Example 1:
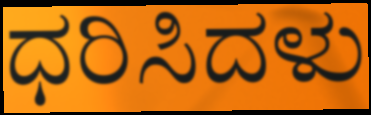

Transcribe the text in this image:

ಧರಿಸಿದಳು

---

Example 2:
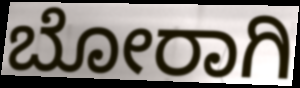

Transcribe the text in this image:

ಬೋರಾಗಿ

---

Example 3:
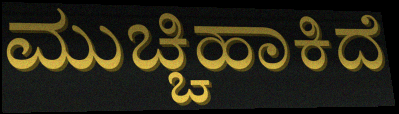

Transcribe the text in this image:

ಮುಚ್ಚಿಹಾಕಿದೆ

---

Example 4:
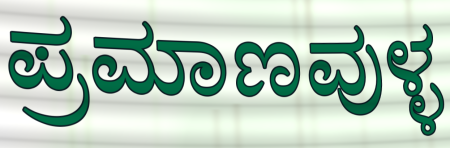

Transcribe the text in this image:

ಪ್ರಮಾಣವುಳ್ಳ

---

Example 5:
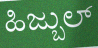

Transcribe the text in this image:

ಹಿಜ್ಬುಲ್